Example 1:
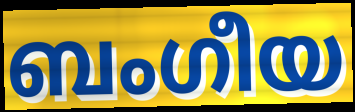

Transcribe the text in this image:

ബംഗീയ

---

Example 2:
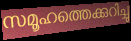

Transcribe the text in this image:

സമൂഹത്തെക്കുറിച്ചു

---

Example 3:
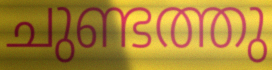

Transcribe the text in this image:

ചുണ്ടത്തു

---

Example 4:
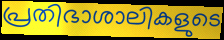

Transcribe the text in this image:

പ്രതിഭാശാലികളുടെ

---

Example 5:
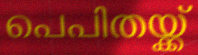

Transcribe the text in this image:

പെപിതയ്ക്ക്